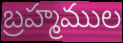
బ్రహ్మముల